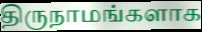
திருநாமங்களாக